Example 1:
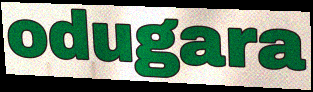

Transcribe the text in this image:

odugara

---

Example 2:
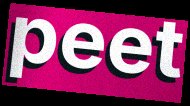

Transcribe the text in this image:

peet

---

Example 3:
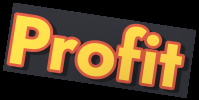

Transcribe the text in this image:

Profit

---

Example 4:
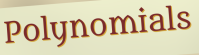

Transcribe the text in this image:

Polynomials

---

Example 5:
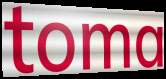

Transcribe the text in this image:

toma